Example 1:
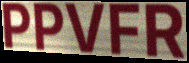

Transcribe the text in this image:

PPVFR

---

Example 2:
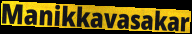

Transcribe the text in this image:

Manikkavasakar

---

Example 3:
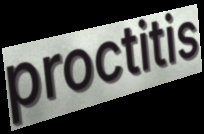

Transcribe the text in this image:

proctitis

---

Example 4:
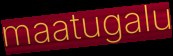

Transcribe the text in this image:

maatugalu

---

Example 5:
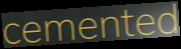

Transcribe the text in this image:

cemented